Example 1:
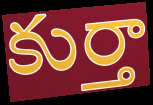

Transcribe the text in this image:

కుర్తా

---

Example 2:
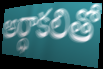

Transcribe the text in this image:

అర్ధాకలితో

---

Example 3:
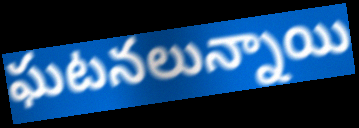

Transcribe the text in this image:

ఘటనలున్నాయి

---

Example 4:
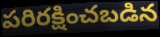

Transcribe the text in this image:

పరిరక్షించబడిన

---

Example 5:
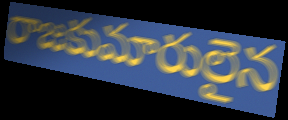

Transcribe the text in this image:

రాజకుమారులైన